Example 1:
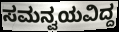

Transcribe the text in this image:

ಸಮನ್ವಯವಿದ್ದ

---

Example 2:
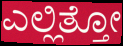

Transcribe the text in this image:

ಎಲ್ಲಿತ್ತೋ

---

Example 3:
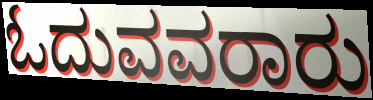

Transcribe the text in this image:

ಓದುವವರಾರು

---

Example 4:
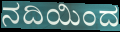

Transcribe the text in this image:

ನದಿಯಿಂದ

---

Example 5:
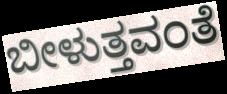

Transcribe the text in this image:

ಬೀಳುತ್ತವಂತೆ